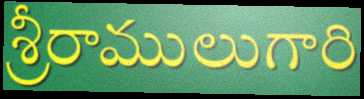
శ్రీరాములుగారి